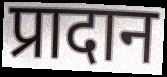
प्रादान